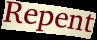
Repent